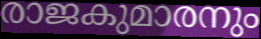
രാജകുമാരനും